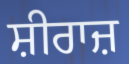
ਸ਼ੀਰਾਜ਼